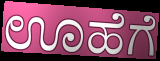
ಊಹೆಗೆ